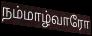
நம்மாழ்வாரோ